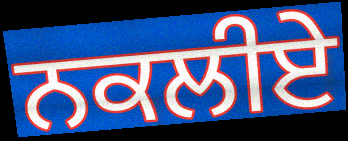
ਨਕਲੀਏ